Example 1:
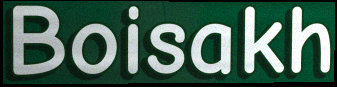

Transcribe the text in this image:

Boisakh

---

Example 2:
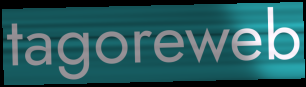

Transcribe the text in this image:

tagoreweb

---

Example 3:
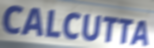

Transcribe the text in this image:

CALCUTTA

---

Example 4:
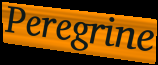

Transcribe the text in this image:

Peregrine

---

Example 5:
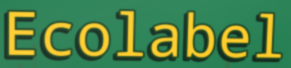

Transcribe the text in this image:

Ecolabel